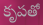
కృపతో